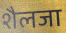
शैलजा